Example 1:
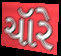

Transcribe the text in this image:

ચૉરે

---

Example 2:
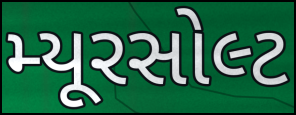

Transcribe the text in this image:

મ્યૂરસોલ્ટ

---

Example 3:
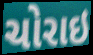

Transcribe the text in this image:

ચોરાઇ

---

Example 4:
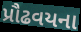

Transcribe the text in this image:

પ્રૌઢવયના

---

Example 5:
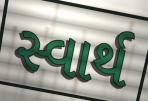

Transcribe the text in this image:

સ્વાર્થ